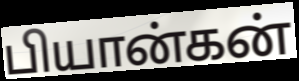
பியான்கன்